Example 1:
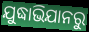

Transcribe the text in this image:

ଯୁଦ୍ଧାଭିଯାନରୁ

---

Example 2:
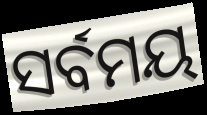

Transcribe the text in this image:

ସର୍ବମୟ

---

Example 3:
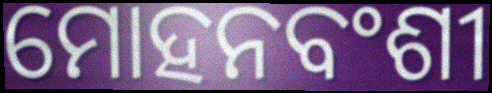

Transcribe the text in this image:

ମୋହନବଂଶୀ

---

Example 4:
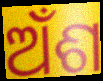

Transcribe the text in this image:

ଅଁଶ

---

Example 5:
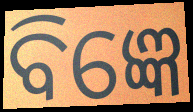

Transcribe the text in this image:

ବିଜ୍ଞେ